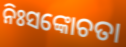
ନିଃସଙ୍କୋଚତା